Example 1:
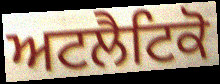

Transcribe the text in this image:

ਅਟਲੈਟਿਕੋ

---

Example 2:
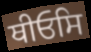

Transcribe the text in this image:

ਥੀਓਸਿ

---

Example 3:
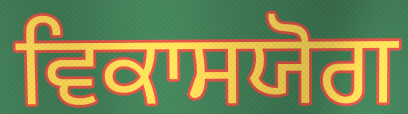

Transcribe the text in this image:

ਵਿਕਾਸਯੋਗ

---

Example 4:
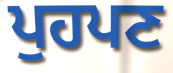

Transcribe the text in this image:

ਪੁਹਪਣ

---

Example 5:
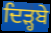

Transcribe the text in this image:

ਦਿੜ੍ਹਬੇ